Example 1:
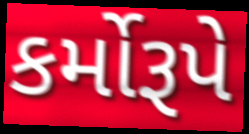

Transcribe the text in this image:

કર્મોરૂપે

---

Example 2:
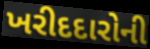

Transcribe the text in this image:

ખરીદદારોની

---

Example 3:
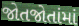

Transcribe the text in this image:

જોતજોતાંમાં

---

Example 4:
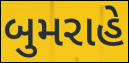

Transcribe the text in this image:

બુમરાહે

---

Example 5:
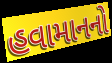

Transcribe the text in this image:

હવામાનનો